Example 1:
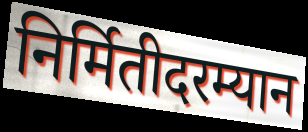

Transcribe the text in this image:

निर्मितीदरम्यान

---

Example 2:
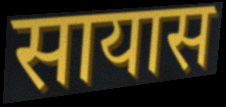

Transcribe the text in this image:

सायास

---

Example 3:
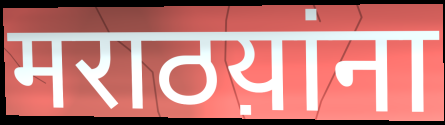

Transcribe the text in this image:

मराठय़ांना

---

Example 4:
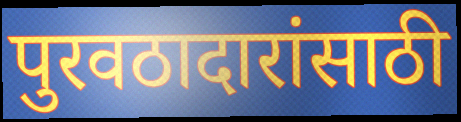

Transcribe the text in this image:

पुरवठादारांसाठी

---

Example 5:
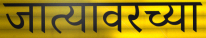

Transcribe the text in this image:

जात्यावरच्या